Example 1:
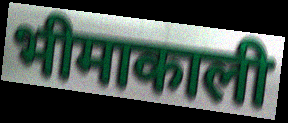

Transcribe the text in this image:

भीमाकाली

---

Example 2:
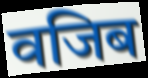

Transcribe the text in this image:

वजिब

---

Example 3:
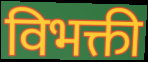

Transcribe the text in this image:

विभक्ती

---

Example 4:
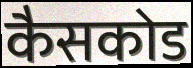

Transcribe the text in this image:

कैसकोड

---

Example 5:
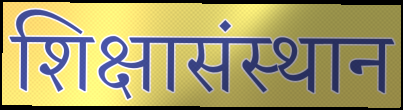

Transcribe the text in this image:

शिक्षासंस्थान